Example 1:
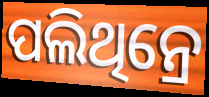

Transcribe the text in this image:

ପଲିଥିନ୍ରେ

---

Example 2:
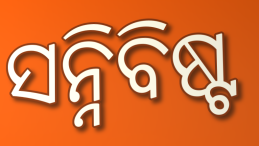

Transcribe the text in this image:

ସନ୍ନିବିଷ୍ଟ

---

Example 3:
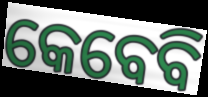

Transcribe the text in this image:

କେବେବି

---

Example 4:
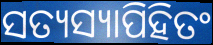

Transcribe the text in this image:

ସତ୍ୟସ୍ୟାପିହିତଂ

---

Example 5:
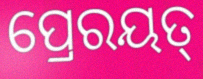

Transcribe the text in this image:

ପ୍ରେରୟତ୍